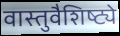
वास्तुवैशिष्ट्ये